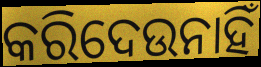
କରିଦେଉନାହିଁ